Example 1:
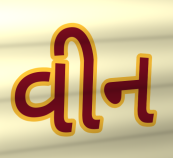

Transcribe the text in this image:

વીન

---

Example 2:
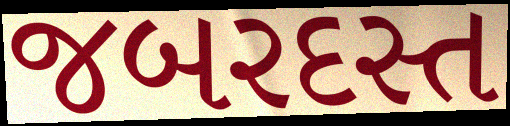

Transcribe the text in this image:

જબરદસ્ત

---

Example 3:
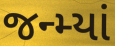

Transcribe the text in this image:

જન્મ્યાં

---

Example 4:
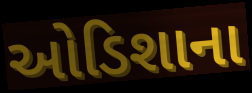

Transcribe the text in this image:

ઓડિશાના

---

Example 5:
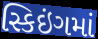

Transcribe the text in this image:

સ્કિઇંગમાં